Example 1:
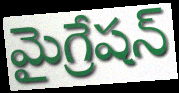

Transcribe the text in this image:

మైగ్రేషన్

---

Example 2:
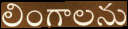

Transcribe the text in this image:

లింగాలను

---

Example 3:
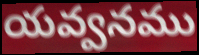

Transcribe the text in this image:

యవ్వనము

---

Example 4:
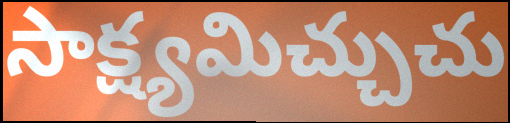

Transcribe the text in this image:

సాక్ష్యమిచ్చుచు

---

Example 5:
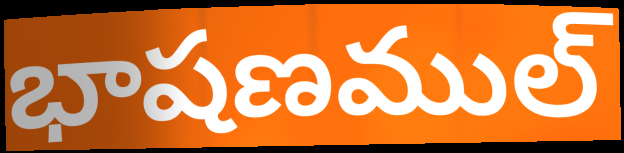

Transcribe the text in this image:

భాషణముల్